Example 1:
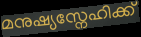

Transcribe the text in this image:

മനുഷ്യസ്നേഹിക്ക്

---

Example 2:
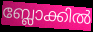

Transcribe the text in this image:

ബ്ലോക്കിൽ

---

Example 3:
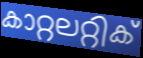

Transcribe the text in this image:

കാറ്റലറ്റിക്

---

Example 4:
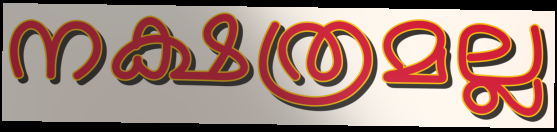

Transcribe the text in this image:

നക്ഷത്രമല്ല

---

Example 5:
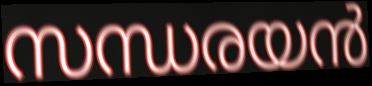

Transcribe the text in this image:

സന്ധരയൻ